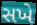
સખે